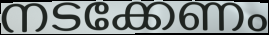
നടക്കേണം